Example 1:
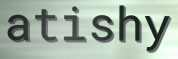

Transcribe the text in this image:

atishy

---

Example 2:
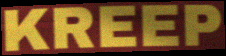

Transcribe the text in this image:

KREEP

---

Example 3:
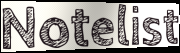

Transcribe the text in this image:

Notelist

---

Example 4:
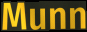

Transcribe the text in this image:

Munn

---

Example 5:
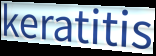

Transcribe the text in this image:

keratitis